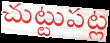
చుట్టుపట్ల